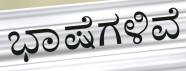
ಭಾಷೆಗಳಿವೆ